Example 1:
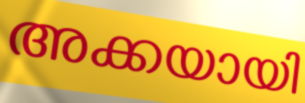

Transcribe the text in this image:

അക്കയായി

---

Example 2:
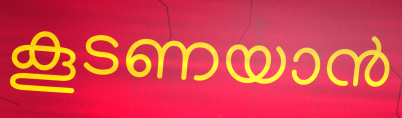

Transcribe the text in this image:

കൂടണയാൻ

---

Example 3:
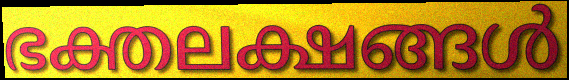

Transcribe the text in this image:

ഭക്തലക്ഷങ്ങൾ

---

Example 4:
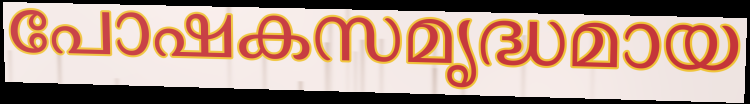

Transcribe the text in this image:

പോഷകസമൃദ്ധമായ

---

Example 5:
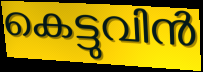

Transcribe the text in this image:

കെട്ടുവിൻ